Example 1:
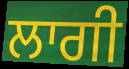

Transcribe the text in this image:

ਲਾਗੀ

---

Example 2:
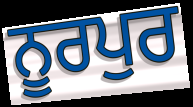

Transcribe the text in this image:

ਨੂਰਪੁਰ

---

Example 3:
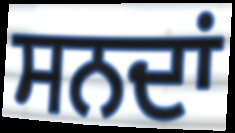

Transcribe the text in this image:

ਸਨਦਾਂ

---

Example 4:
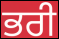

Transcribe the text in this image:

ਭਰੀ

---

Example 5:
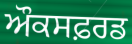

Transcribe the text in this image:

ਔਕਸਫ਼ਰਡ